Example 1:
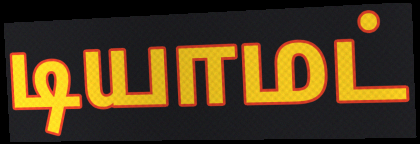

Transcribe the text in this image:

டியாமட்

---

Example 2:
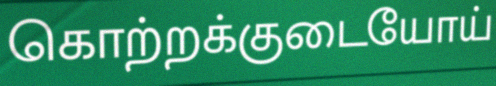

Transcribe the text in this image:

கொற்றக்குடையோய்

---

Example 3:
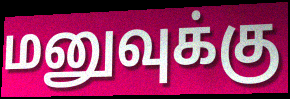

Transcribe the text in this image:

மனுவுக்கு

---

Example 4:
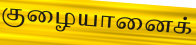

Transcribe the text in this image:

குழையானைக்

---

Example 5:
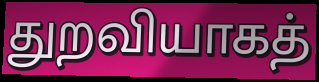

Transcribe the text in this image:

துறவியாகத்